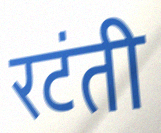
रटंती